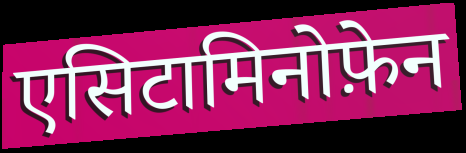
एसिटामिनोफ़ेन